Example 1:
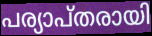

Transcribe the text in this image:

പര്യാപ്തരായി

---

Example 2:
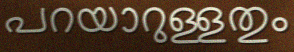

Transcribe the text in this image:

പറയാറുള്ളതും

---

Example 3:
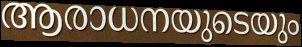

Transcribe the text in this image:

ആരാധനയുടെയും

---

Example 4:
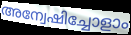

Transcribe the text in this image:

അന്വേഷിച്ചോളാം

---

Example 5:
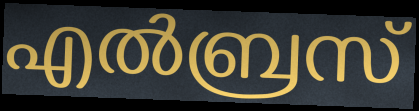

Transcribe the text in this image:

എൽബ്രസ്